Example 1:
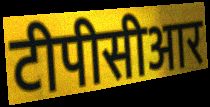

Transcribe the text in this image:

टीपीसीआर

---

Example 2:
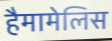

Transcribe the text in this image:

हैमामेलिस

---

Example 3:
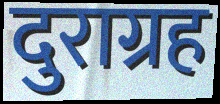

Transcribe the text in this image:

दुराग्रह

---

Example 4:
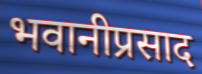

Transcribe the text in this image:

भवानीप्रसाद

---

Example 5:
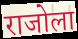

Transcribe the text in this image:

राजोला